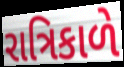
રાત્રિકાળે